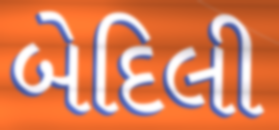
બેદિલી